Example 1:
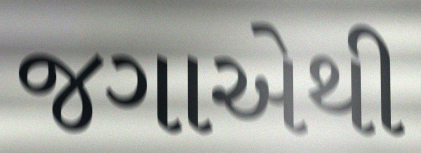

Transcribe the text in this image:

જગાએથી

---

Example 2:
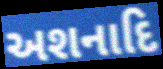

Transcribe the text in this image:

અશનાદિ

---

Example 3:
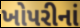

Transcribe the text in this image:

ખોપરીનાં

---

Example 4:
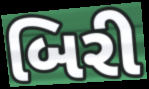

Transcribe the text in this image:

બિરી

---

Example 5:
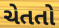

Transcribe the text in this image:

ચેતતો